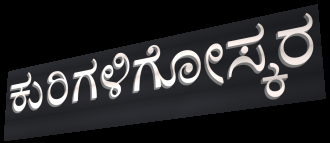
ಕುರಿಗಳಿಗೋಸ್ಕರ